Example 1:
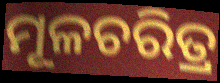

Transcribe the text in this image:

ମୂଳଚରିତ୍ର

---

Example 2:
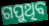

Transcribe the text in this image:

ଗପୁଥିବ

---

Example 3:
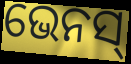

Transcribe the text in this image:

ଭେନସ୍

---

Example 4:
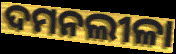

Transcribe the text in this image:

ଦମନଲୀଳା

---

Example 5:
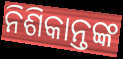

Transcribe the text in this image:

ନିଶିକାନ୍ତଙ୍କ